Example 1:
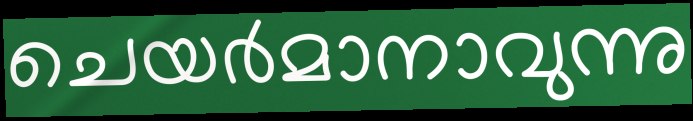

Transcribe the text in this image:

ചെയർമാനാവുന്നു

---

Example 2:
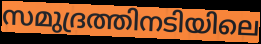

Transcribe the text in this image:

സമുദ്രത്തിനടിയിലെ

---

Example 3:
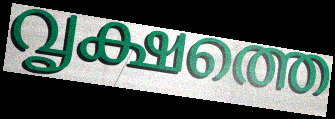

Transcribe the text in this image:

വൃക്ഷത്തെ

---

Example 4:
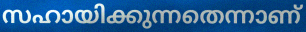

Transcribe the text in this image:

സഹായിക്കുന്നതെന്നാണ്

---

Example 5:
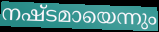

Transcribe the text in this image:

നഷ്ടമായെന്നും